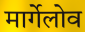
मार्गेलोव